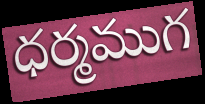
ధర్మముగ